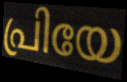
പ്രിയേ